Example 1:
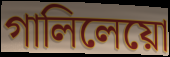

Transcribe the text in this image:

গালিলেয়ো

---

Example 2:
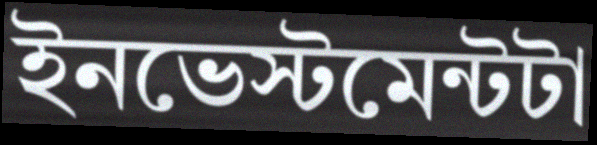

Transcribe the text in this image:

ইনভেস্টমেন্টটা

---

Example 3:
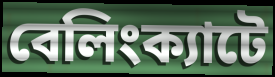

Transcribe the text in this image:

বেলিংক্যাটে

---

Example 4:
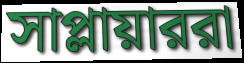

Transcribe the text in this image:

সাপ্লায়াররা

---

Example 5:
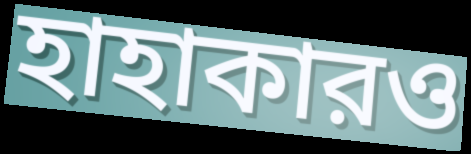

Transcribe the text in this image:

হাহাকারও